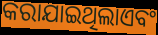
କରାଯାଇଥିଲାଏବଂ